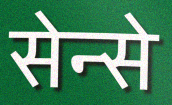
सेन्से